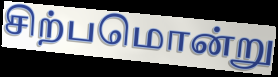
சிற்பமொன்று